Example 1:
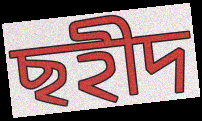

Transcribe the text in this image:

ছহীদ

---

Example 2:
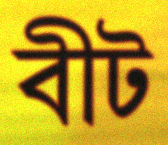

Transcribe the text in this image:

বীট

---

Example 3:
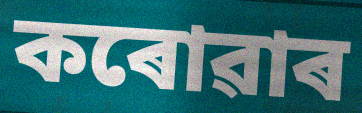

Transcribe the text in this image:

কৰোৱাৰ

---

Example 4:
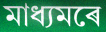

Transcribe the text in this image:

মাধ্যমৰে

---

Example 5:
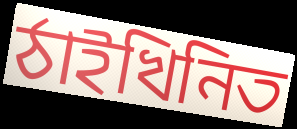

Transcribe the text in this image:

ঠাইখিনিত